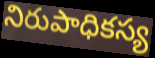
నిరుపాధికస్య